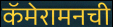
कॅमेरामनची